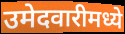
उमेदवारीमध्ये